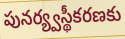
పునర్య్వస్థీకరణకు